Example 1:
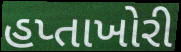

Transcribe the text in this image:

હપ્તાખોરી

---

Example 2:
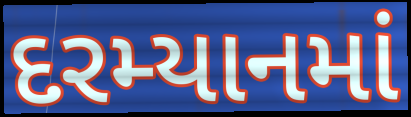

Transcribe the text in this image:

દરમ્યાનમાં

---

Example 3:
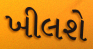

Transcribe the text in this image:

ખીલશે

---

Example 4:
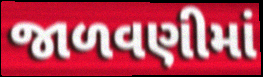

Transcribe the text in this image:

જાળવણીમાં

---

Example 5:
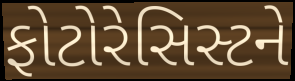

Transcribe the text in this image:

ફોટોરેસિસ્ટને